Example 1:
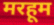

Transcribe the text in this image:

मरहूम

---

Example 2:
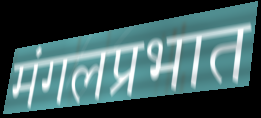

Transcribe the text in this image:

मंगलप्रभात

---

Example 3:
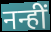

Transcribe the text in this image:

नन्‍हीं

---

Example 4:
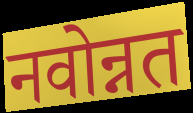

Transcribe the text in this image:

नवोन्नत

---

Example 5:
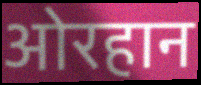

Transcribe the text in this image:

ओरहान